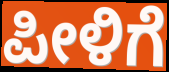
ಪೀಳಿಗೆ